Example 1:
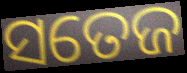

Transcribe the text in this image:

ସତେଜ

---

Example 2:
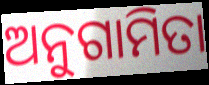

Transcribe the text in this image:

ଅନୁଗାମିତା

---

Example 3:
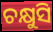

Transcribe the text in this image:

ଚକ୍ଷୁସି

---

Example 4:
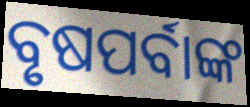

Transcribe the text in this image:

ବୃଷପର୍ବାଙ୍କ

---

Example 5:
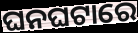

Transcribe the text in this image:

ଘନଘଟାରେ